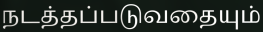
நடத்தப்படுவதையும்